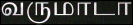
வருமாடா